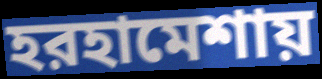
হরহামেশায়